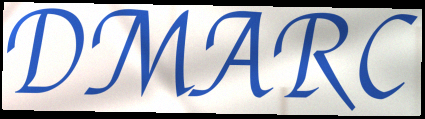
DMARC